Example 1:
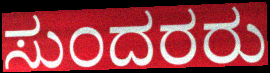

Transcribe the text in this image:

ಸುಂದರರು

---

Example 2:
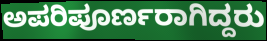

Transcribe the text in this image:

ಅಪರಿಪೂರ್ಣರಾಗಿದ್ದರು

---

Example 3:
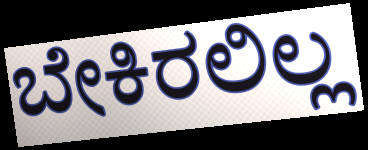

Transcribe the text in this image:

ಬೇಕಿರಲಿಲ್ಲ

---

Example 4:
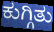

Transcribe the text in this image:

ಕುಗ್ಗಿತು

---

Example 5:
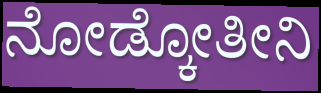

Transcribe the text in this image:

ನೋಡ್ಕೋತೀನಿ